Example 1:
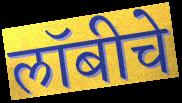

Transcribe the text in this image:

लॉबीचे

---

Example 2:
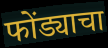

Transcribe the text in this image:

फोंड्याचा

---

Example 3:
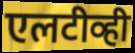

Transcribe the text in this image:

एलटीव्ही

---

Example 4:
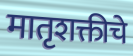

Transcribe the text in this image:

मातृशक्तीचे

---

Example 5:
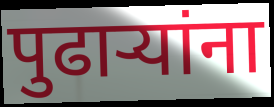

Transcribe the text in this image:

पुढाऱ्यांना